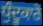
ਧੁੰਦੂਕਾਰੇ